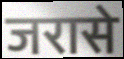
जरासे